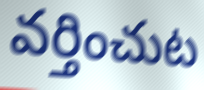
వర్తించుట